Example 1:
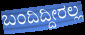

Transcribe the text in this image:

ಬಂದಿದ್ದೀರಲ್ಲ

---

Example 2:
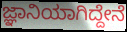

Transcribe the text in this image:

ಜ್ಞಾನಿಯಾಗಿದ್ದೇನೆ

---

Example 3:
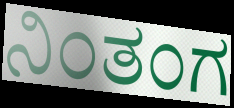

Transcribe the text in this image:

ನಿಂತಂಗ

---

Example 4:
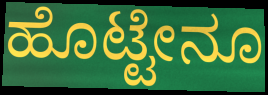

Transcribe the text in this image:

ಹೊಟ್ಟೇನೂ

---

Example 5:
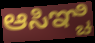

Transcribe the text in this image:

ಆಸಿಞ್ಚಿ